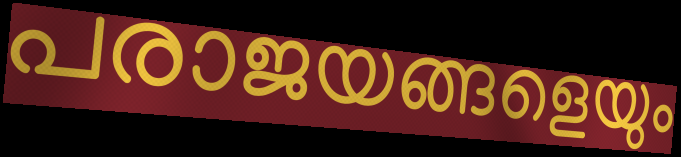
പരാജയങ്ങളെയും